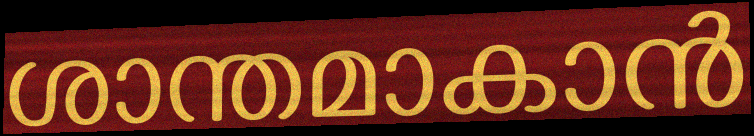
ശാന്തമാകാൻ